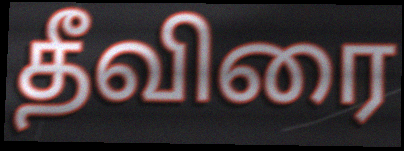
தீவிரை